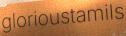
glorioustamils